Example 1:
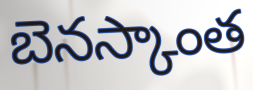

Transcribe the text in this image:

బెనస్కాంత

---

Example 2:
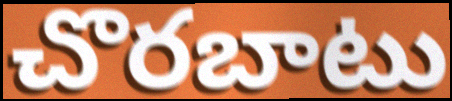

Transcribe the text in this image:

చొరబాటు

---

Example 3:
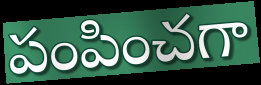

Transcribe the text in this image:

పంపించగా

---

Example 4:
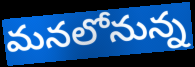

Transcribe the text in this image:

మనలోనున్న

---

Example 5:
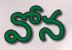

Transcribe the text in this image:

వోన